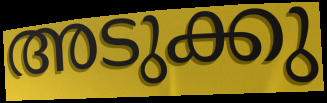
അടുക്കു